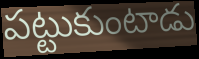
పట్టుకుంటాడు